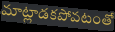
మాట్లాడకపోవటంతో